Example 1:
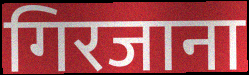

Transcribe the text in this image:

गिरजाना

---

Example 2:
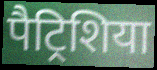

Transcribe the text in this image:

पैट्रिशिया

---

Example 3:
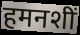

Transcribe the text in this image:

हमनशीं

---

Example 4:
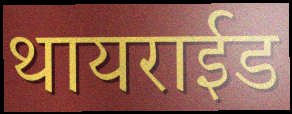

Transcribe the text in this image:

थायराईड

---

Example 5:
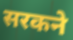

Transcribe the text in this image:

सरकने